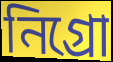
নিগ্ৰো